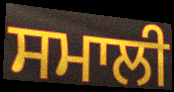
ਸਮਾਲੀ